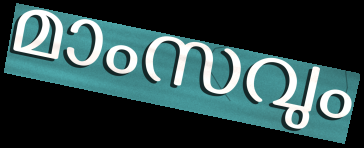
മാംസവും